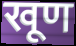
खूण